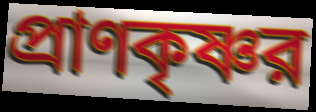
প্রাণকৃষ্ণর